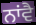
ਨਾਂਵੈ